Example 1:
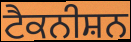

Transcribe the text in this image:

ਟੈਕਨੀਸ਼ਨ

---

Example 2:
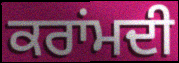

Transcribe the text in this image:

ਕਰਾਂਮਦੀ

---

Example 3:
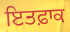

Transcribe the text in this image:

ਇਤਫ਼ਾਕ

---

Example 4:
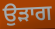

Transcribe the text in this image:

ਉੜਾਗ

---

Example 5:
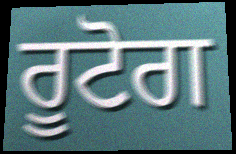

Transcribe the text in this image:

ਰੂਟੋਗ